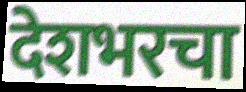
देशभरचा